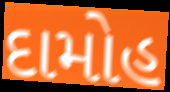
દામોહ